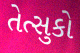
તેત્સુકો